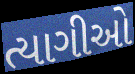
ત્યાગીઓ